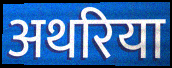
अथरिया